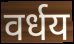
वर्धय